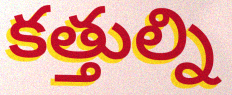
కత్తుల్ని